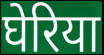
घेरिया